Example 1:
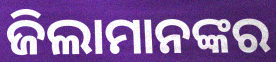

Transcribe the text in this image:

ଜିଲାମାନଙ୍କର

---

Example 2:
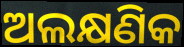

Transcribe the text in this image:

ଅଲକ୍ଷଣିକ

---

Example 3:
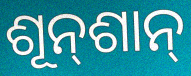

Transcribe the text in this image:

ଶୂନ୍‌ଶାନ୍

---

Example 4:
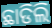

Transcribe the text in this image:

ଛାଡିଲି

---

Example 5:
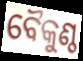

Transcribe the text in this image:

ବୈକୁଣ୍ଠ